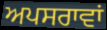
ਅਪਸਰਾਵਾਂ